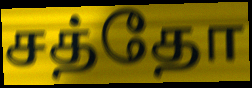
சத்தோ